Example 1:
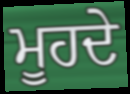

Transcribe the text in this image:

ਮੂਹਦੇ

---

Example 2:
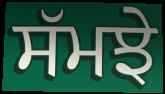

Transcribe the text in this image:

ਸੱਮਝੇ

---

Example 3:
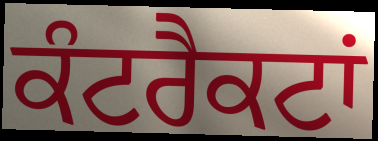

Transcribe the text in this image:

ਕੰਟਰੈਕਟਾਂ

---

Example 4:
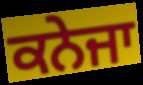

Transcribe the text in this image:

ਕਨੇਜਾ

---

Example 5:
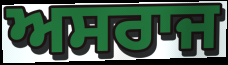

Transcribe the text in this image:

ਅਸਰਾਜ